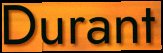
Durant